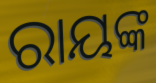
ରାୟଙ୍କ